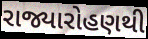
રાજ્યારોહણથી